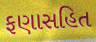
ફણાસહિત